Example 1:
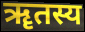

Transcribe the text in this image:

ॠतस्य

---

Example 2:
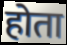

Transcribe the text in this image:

होता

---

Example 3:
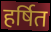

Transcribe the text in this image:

हर्षित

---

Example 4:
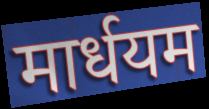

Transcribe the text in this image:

मार्धयम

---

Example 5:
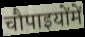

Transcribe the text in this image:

चौपाइयोंमें